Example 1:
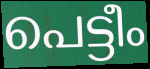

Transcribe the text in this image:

പെട്ടീം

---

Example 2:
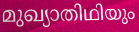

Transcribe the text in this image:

മുഖ്യാതിഥിയും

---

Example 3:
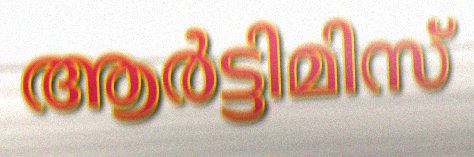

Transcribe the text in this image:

ആർട്ടിമിസ്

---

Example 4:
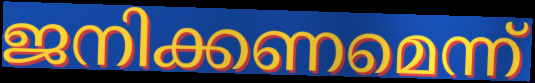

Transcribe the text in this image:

ജനിക്കണമെന്ന്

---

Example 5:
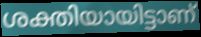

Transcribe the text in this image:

ശക്തിയായിട്ടാണ്